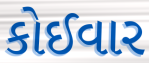
કોઈવાર